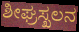
ಶೀಘ್ರಸ್ಖಲನ